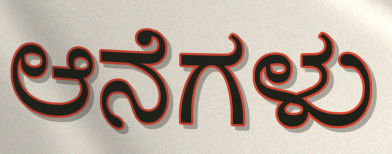
ಆನೆಗಳು